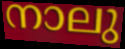
നാലു